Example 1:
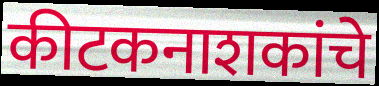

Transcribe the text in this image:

कीटकनाशकांचे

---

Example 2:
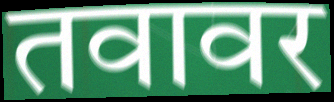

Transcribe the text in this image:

तवावर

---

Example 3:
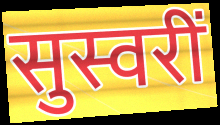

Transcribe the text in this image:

सुस्वरीं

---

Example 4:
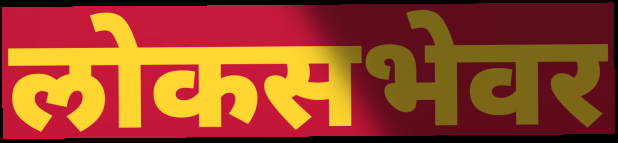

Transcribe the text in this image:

लोकसभेवर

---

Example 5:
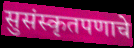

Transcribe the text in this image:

सुसंस्कृतपणाचे